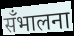
सँभालना